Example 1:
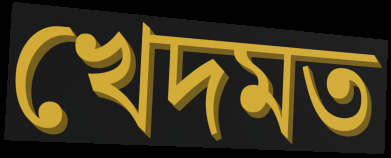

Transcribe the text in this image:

খেদমত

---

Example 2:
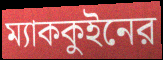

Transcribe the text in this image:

ম্যাককুইনের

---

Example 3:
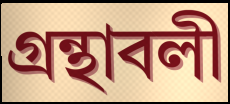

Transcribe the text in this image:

গ্রন্থাবলী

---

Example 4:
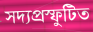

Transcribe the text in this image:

সদ্যপ্রস্ফুটিত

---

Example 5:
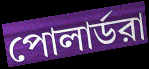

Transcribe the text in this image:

পোলার্ডরা